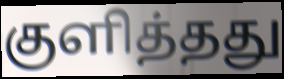
குளித்தது